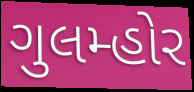
ગુલમ્હોર